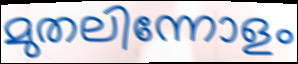
മുതലിന്നോളം